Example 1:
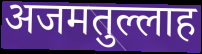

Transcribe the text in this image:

अजमतुल्लाह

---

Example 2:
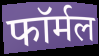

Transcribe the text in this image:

फॉर्मल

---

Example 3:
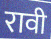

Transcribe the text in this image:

रावी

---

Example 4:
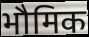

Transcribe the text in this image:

भौमिक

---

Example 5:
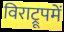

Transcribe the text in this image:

विराट्रूपमें